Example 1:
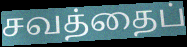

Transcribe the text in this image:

சவத்தைப்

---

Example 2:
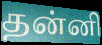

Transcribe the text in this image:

தன்னி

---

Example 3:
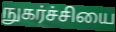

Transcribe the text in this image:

நுகர்ச்சியை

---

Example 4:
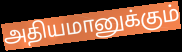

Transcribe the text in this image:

அதியமானுக்கும்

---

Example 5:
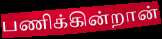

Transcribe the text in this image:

பணிக்கின்றான்